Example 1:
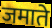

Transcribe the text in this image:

जमाते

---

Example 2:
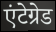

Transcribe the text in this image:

एंटेग्रेड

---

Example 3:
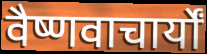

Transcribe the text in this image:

वैष्णवाचार्यों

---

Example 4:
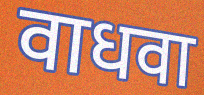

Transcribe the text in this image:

वाधवा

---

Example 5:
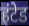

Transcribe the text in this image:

हंटेड